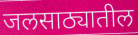
जलसाठ्यातील